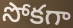
సోకగా